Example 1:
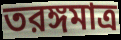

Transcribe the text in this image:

তরঙ্গমাত্র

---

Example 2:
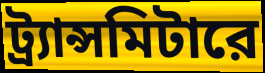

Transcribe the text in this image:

ট্র্যান্সমিটারে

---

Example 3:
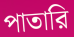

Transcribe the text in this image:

পাতারি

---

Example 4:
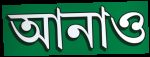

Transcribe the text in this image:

আনাও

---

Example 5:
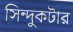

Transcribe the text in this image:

সিন্দুকটার